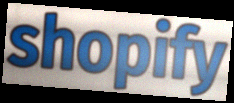
shopify